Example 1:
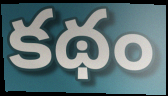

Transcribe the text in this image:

కథం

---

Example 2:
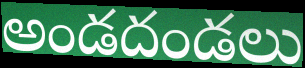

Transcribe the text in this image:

అండదండలు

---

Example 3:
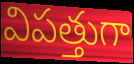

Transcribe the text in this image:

విపత్తుగా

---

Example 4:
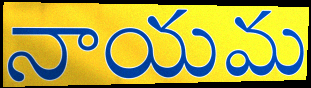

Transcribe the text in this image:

నాయమ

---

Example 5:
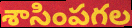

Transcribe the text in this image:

శాసింపగల